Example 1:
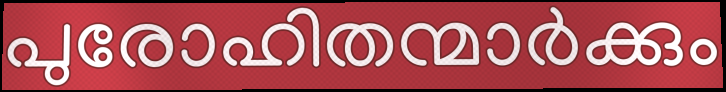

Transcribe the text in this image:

പുരോഹിതന്മാർക്കും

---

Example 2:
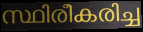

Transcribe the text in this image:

സ്ഥിരീകരിച്ച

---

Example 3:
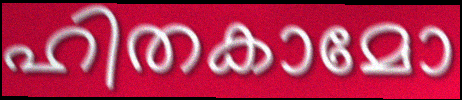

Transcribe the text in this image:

ഹിതകാമോ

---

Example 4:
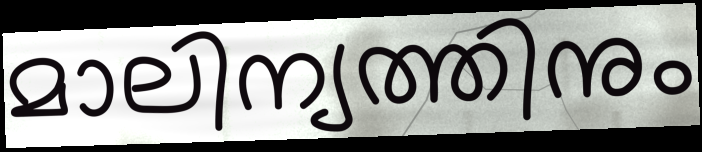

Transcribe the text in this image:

മാലിന്യത്തിനും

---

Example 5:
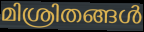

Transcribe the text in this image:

മിശ്രിതങ്ങൾ